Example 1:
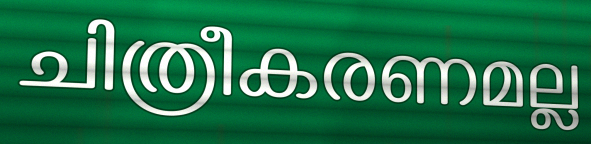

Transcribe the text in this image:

ചിത്രീകരണമല്ല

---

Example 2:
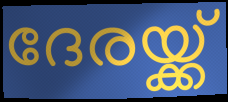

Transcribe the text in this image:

ദേരയ്ക്ക്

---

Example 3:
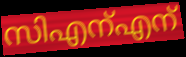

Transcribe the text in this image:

സിഎന്എന്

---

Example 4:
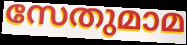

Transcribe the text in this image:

സേതുമാമ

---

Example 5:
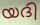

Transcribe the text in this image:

യദി